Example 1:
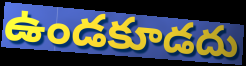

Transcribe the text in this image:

ఉండకూడదు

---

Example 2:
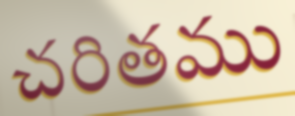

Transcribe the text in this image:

చరితము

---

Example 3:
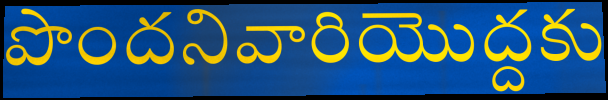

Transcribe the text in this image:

పొందనివారియొద్దకు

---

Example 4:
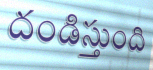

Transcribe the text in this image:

దండిస్తుంది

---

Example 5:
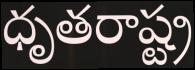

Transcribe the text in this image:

ధృతరాష్ట్ర